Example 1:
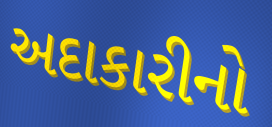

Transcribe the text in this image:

અદાકારીનો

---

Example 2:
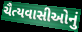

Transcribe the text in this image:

ચૈત્યવાસીઓનું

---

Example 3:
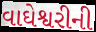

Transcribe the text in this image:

વાઘેશ્વરીની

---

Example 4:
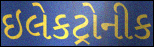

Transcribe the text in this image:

ઇલેકટ્રોનીક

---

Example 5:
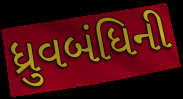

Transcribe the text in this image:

ધ્રુવબંધિની